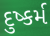
દુષ્કર્મ